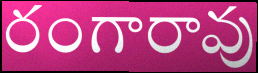
రంగారావు